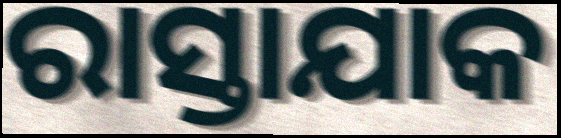
ରାସ୍ତାଯାକ